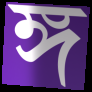
ঙ্গ